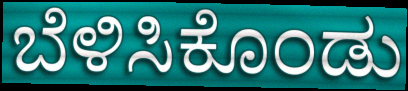
ಬೆಳಿಸಿಕೊಂಡು